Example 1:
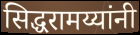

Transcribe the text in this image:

सिद्धरामय्यांनी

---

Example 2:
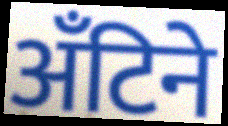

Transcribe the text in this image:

अँटिने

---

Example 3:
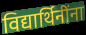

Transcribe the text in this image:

विद्यार्थिनींना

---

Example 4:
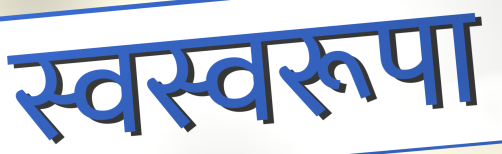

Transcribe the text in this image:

स्वस्वरूपा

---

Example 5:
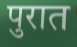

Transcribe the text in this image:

पुरात